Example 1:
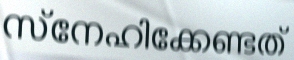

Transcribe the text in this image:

സ്‌നേഹിക്കേണ്ടത്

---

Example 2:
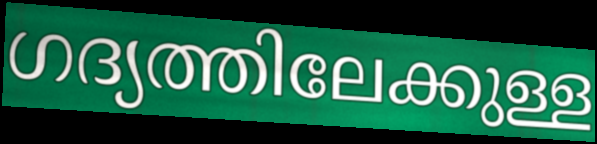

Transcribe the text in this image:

ഗദ്യത്തിലേക്കുള്ള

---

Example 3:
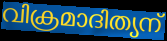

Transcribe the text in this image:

വിക്രമാദിത്യന്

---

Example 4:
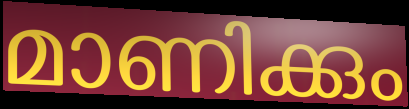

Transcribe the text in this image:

മാണിക്കും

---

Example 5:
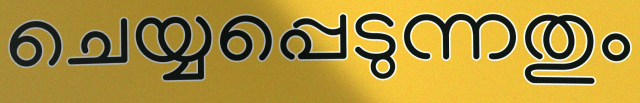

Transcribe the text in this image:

ചെയ്യപ്പെടുന്നതും